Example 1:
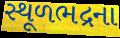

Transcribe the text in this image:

સ્થૂળભદ્રના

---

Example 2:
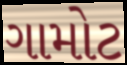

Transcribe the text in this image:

ગામોટ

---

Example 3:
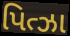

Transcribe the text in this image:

પિત્ઝા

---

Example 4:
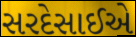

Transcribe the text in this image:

સરદેસાઈએ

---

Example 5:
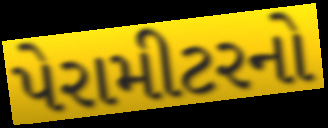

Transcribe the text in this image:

પેરામીટરનો